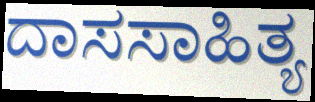
ದಾಸಸಾಹಿತ್ಯ